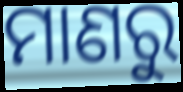
ମାଣରୁ